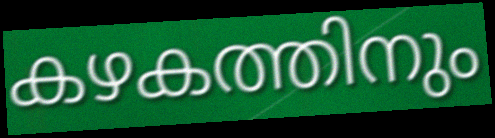
കഴകത്തിനും